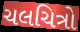
ચલચિત્રો